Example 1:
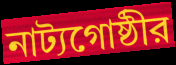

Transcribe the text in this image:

নাট্যগোষ্ঠীর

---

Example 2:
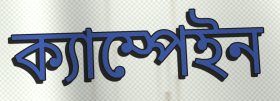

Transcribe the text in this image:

ক্যাম্পেইন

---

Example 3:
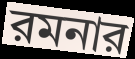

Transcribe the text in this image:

রমনার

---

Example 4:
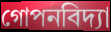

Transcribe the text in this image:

গোপনবিদ্যা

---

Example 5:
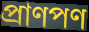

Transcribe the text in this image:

প্রাণপণ